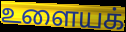
உளையக்